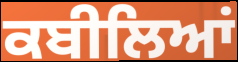
ਕਬੀਲਿਆਂ